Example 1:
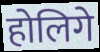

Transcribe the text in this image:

होलिगे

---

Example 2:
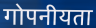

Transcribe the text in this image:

गोपनीयता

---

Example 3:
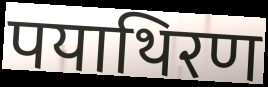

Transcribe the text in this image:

पयाथिरण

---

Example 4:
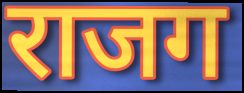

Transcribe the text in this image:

राजग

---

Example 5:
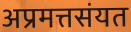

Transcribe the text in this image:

अप्रमत्तसंयत